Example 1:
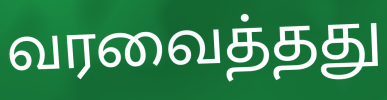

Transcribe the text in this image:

வரவைத்தது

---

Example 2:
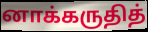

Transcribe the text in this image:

னாக்கருதித்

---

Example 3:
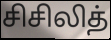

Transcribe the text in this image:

சிசிலித்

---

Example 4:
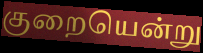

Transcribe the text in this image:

குறையென்று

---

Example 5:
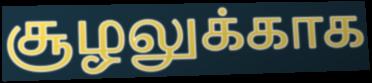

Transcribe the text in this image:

சூழலுக்காக